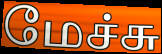
மேச்சு